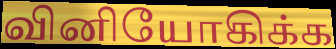
வினியோகிக்க